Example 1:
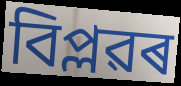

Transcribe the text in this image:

বিপ্লৱৰ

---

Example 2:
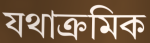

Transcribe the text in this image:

যথাক্ৰমিক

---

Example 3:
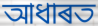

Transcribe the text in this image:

আধাৰত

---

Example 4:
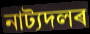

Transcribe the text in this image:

নাট্যদলৰ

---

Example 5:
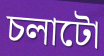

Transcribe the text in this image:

চলাটো